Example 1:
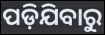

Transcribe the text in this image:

ପଡ଼ିଯିବାରୁ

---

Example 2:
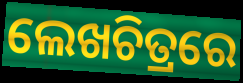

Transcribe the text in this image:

ଲେଖଚିତ୍ରରେ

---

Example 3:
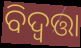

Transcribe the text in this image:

ବିଦ୍ୱତ୍ତା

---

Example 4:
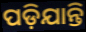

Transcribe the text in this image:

ପଡ଼ିଯାନ୍ତି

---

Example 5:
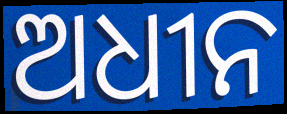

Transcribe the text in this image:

ଅଧୀନ